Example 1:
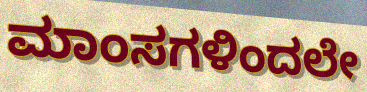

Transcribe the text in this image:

ಮಾಂಸಗಳಿಂದಲೇ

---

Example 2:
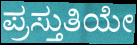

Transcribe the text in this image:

ಪ್ರಸ್ತುತಿಯೇ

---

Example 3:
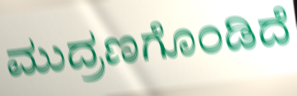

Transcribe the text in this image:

ಮುದ್ರಣಗೊಂಡಿದೆ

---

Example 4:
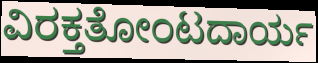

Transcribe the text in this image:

ವಿರಕ್ತತೋಂಟದಾರ್ಯ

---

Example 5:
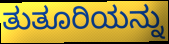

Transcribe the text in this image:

ತುತೂರಿಯನ್ನು